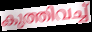
കുത്തിവച്ച്